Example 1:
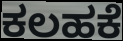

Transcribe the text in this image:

ಕಲಹಕೆ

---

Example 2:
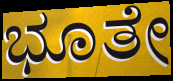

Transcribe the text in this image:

ಭೂತೇ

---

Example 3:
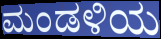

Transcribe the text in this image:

ಮಂಡಳಿಯ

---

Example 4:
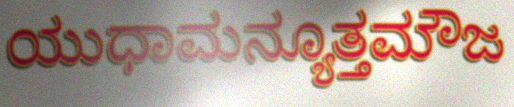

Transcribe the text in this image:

ಯುಧಾಮನ್ಯೂತ್ತಮೌಜ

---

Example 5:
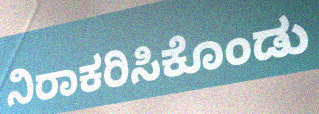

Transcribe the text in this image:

ನಿರಾಕರಿಸಿಕೊಂಡು